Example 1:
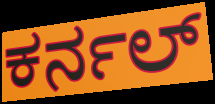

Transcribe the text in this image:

ಕರ್ನಲ್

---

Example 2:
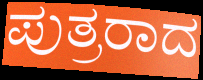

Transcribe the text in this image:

ಪುತ್ರರಾದ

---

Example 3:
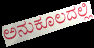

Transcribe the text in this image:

ಅನುಕೂಲದಲ್ಲಿ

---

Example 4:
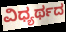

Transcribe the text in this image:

ವಿಧ್ಯರ್ಥದ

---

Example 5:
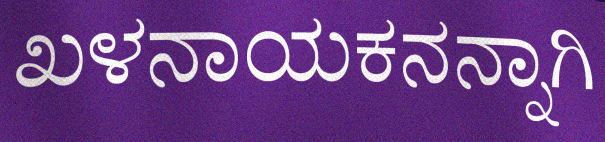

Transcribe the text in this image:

ಖಳನಾಯಕನನ್ನಾಗಿ